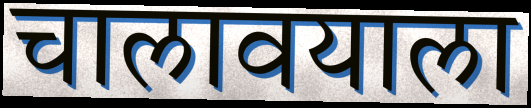
चालावयाला